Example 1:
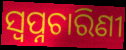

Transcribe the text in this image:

ସ୍ୱପ୍ନଚାରିଣୀ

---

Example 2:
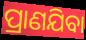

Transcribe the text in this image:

ପ୍ରାଣଯିବା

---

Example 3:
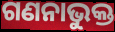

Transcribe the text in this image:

ଗଣନାଭୁକ୍ତ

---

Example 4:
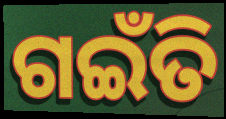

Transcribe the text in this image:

ଗଇଁତି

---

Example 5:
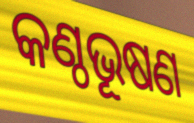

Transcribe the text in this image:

କଣ୍ଠଭୂଷଣ